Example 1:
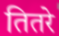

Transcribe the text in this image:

तितरे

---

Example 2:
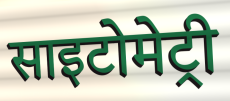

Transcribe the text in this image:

साइटोमेट्री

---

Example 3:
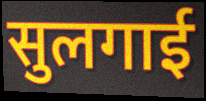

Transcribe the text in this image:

सुलगाई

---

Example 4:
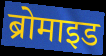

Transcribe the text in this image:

ब्रोमाइड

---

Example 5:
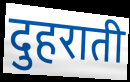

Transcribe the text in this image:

दुहराती